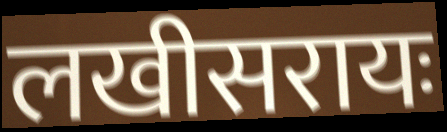
लखीसरायः